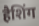
हैशिंग